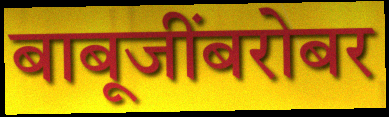
बाबूजींबरोबर